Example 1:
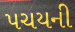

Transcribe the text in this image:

પચયની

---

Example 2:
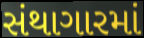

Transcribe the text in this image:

સંથાગારમાં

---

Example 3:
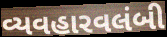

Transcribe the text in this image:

વ્યવહારવલંબી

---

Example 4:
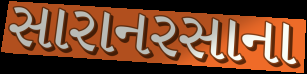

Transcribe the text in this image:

સારાનરસાના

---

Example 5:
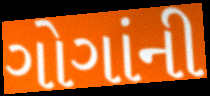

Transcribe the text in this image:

ગોગાંની